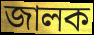
জালক